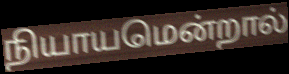
நியாயமென்றால்